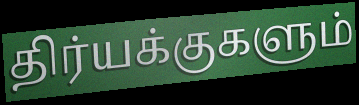
திர்யக்குகளும்